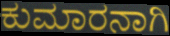
ಕುಮಾರನಾಗಿ